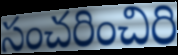
సంచరించిరి